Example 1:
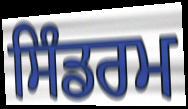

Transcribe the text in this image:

ਸਿੰਡਰਮ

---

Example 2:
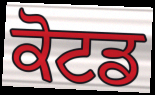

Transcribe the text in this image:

ਕੋਟਡ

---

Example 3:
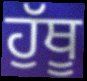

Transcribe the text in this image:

ਹੁੱਥੂ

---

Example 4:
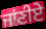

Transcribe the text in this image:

ਜਾਂਣੀਏ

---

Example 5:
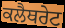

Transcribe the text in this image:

ਕਲੈਥਰੇਟ